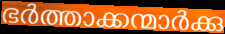
ഭർത്താക്കന്മാർക്കു